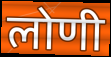
लोणी